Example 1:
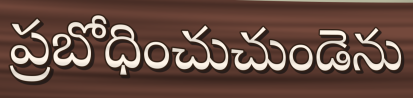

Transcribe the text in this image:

ప్రబోధించుచుండెను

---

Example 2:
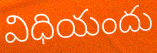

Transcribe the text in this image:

విధియందు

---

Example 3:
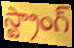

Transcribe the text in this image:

స్ట్రాంగ్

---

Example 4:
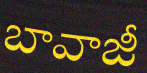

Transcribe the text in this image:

బావాజీ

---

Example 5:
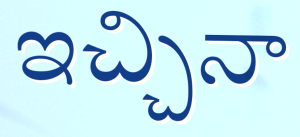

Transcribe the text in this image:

ఇచ్చినా